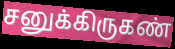
சனுக்கிருகண்